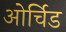
ओर्चिड